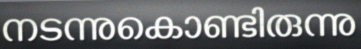
നടന്നുകൊണ്ടിരുന്നു